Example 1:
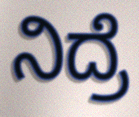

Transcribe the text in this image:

ನಿದ್ರೆ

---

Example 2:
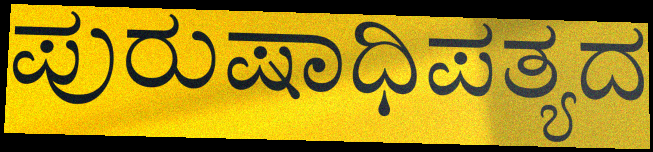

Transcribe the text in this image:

ಪುರುಷಾಧಿಪತ್ಯದ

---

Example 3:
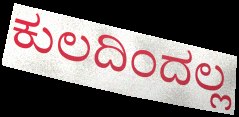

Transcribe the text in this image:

ಕುಲದಿಂದಲ್ಲ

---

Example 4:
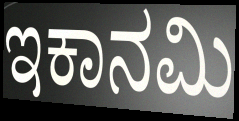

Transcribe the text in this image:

ಇಕಾನಮಿ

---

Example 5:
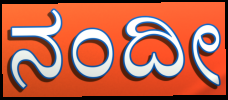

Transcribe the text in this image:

ನಂದೀ